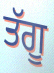
ਤੱਗੂ